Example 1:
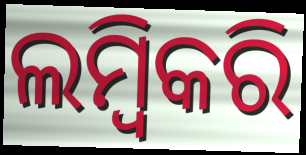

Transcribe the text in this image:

ଲମ୍ବିକରି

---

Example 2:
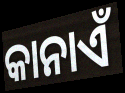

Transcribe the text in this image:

କାନାଏଁ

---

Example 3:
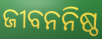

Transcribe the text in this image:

ଜୀବନନିଷ୍ଠ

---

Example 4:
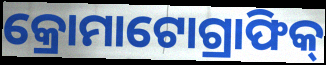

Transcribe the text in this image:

କ୍ରୋମାଟୋଗ୍ରାଫିକ୍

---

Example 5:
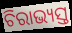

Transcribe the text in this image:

ଚିରାଭ୍ୟସ୍ତ